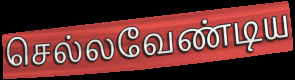
செல்லவேண்டிய